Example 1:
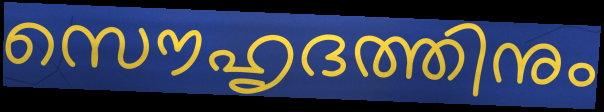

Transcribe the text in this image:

സൌഹൃദത്തിനും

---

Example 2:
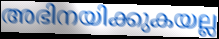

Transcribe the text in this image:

അഭിനയിക്കുകയല്ല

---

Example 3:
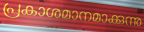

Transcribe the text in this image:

പ്രകാശമാനമാക്കുന്നു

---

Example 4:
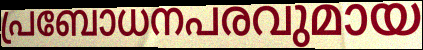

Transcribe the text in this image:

പ്രബോധനപരവുമായ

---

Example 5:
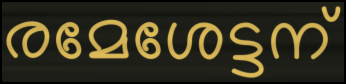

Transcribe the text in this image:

രമേശേട്ടന്